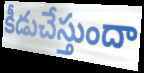
కీడుచేస్తుందా